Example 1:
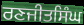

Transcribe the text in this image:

ਰਣਜੀਤਸਿੰਘ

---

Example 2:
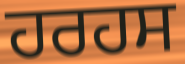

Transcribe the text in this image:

ਹਰਹਸ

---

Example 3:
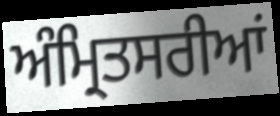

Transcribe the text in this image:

ਅੰਮ੍ਰਿਤਸਰੀਆਂ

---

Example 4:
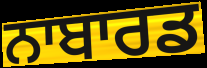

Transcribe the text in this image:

ਨਾਬਾਰਡ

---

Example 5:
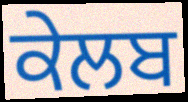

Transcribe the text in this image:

ਕੇਲਬ